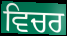
ਵਿਚਰ